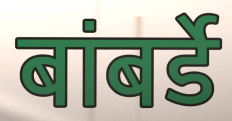
बांबर्डे